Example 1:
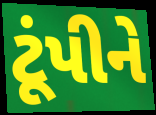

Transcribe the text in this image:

ટૂંપીને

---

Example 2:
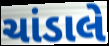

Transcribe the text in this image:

ચાંડાલે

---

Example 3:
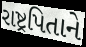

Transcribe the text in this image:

રાષ્ટ્રપિતાને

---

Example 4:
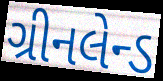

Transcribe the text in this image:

ગ્રીનલેન્ડ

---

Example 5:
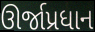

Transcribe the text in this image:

ઊર્જાપ્રધાન